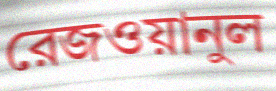
রেজওয়ানুল